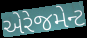
એરેજમેન્ટ